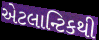
એટલાન્ટિકથી